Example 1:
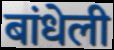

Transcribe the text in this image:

बांधेली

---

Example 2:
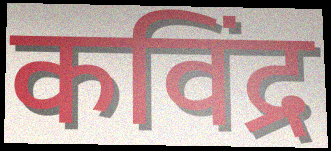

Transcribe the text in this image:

कविंद्र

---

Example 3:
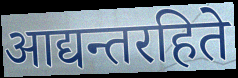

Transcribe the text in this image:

आद्यन्तरहिते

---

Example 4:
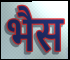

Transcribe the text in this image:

भैस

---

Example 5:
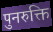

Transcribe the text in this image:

पुनरुक्ति